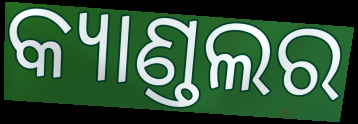
କ୍ୟାଣ୍ଡଲର